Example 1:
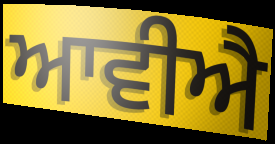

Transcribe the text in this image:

ਆਵੀਐ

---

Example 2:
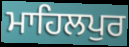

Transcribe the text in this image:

ਮਾਹਿਲਪੁਰ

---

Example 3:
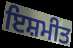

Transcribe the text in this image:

ਇਸ਼ਮੀਤ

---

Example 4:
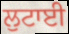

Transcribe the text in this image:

ਲੁਟਾਈ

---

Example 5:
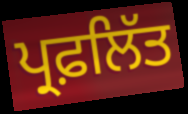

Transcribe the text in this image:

ਪ੍ਰਫ਼ਲਿੱਤ